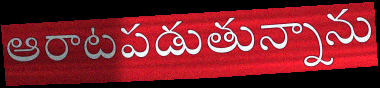
ఆరాటపడుతున్నాను